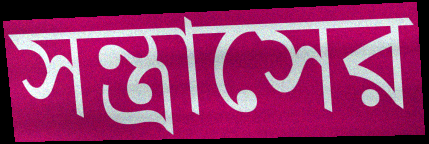
সন্ত্রাসের